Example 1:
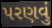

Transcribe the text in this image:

પરણવું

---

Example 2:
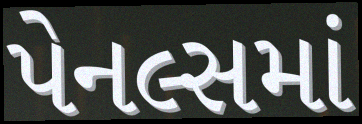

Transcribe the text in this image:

પેનલ્સમાં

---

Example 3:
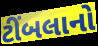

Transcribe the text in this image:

ટીંબલાનો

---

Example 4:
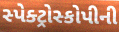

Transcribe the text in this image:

સ્પેક્ટ્રોસ્કોપીની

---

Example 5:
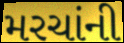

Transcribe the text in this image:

મરચાંની